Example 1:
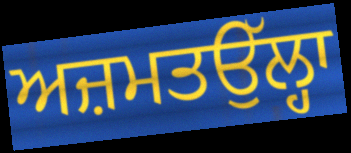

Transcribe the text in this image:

ਅਜ਼ਮਤਉੱਲ੍ਹਾ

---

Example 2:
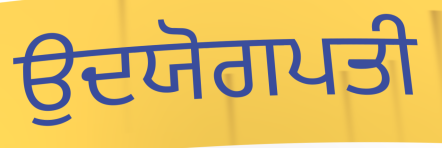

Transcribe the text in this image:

ਉਦਯੋਗਪਤੀ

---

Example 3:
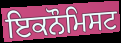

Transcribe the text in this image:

ਇਕਨੌਮਿਸਟ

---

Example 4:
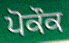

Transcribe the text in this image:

ਪੋਕੌਕ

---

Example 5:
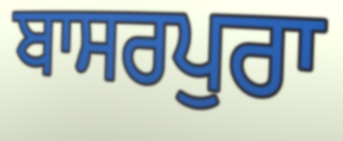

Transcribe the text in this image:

ਬਾਸਰਪੁਰਾ